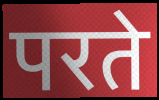
परते